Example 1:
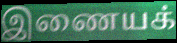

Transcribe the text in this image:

இணையக்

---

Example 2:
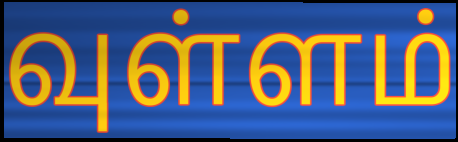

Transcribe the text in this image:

வுள்ளம்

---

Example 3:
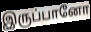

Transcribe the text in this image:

இருப்பானோ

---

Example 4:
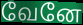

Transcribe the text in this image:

வேனே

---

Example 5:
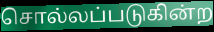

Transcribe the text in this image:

சொல்லப்படுகின்ற